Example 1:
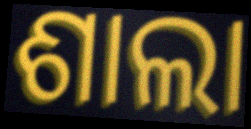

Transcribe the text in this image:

ଶାଲା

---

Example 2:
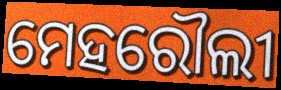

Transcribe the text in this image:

ମେହରୌଲୀ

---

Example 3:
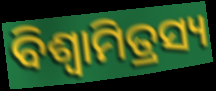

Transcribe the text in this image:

ବିଶ୍ଵାମିତ୍ରସ୍ୟ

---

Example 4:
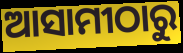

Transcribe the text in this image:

ଆସାମୀଠାରୁ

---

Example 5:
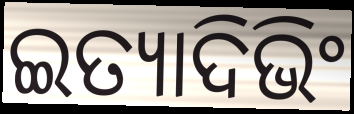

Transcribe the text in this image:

ଇତ୍ୟାଦିଭିଂ